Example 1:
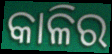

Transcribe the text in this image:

କାଳିର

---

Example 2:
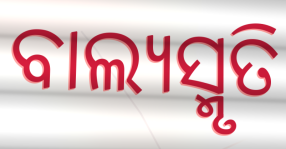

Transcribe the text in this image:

ବାଲ୍ୟସ୍ମୃତି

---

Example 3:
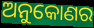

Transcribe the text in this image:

ଅନୁକୋଣର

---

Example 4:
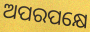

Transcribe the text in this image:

ଅପରପକ୍ଷେ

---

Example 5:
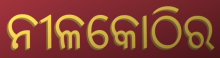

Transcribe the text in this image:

ନୀଳକୋଠିର